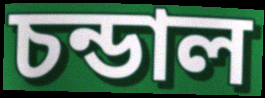
চন্ডাল